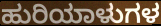
ಹುರಿಯಾಳುಗಳ